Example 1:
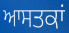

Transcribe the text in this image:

ਆਸਤਕਾਂ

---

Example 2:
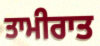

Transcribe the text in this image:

ਤਾਮੀਰਾਤ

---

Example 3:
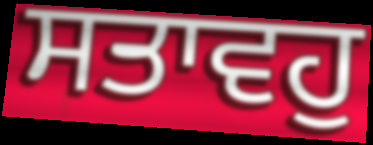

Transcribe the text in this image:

ਸਤਾਵਹੁ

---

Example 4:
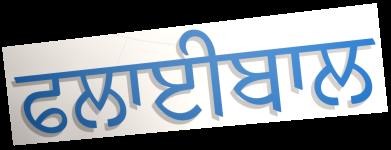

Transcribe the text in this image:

ਫਲਾਈਬਾਲ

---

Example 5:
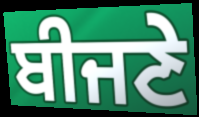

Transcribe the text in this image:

ਬੀਜਣੇ